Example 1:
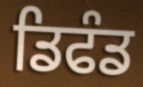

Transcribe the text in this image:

ਡਿਫੰਡ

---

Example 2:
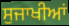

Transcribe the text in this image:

ਸੁਜਾਖੀਆਂ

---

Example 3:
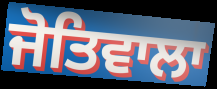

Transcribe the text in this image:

ਜੋਤਿਵਾਲਾ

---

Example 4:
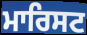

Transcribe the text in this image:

ਮਾਰਿਸਟ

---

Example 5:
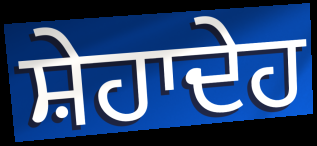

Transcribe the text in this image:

ਸ਼ੇਹਾਦੇਹ